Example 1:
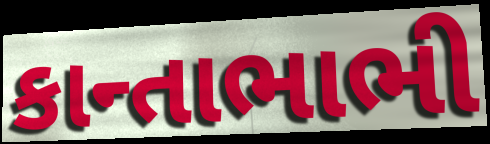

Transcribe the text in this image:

કાન્તાભાભી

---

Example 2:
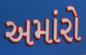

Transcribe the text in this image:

અમાંરો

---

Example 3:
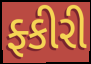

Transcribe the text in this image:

ફ્કીરી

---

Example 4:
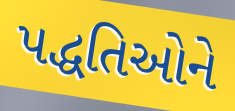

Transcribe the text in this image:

પદ્ધતિઓને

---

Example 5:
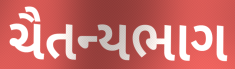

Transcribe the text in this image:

ચૈતન્યભાગ